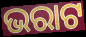
ଭରାଟ